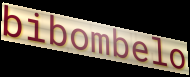
bibombelo